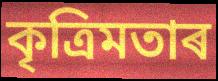
কৃত্ৰিমতাৰ